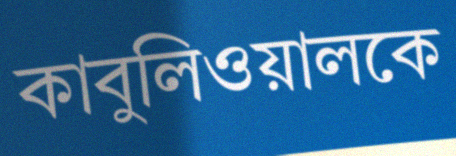
কাবুলিওয়ালকে